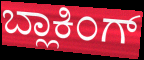
ಬ್ಲಾಕಿಂಗ್